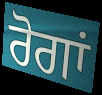
ਰੋਗਾਂ